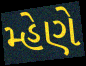
મ્હેણે